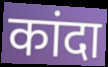
कांदा